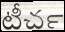
టీచర్‍